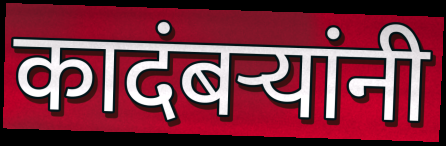
कादंबऱ्यांनी